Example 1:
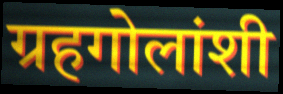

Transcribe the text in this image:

ग्रहगोलांशी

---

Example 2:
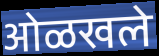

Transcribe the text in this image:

ओळखले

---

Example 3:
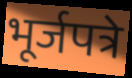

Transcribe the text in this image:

भूर्जपत्रे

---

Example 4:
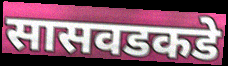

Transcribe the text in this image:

सासवडकडे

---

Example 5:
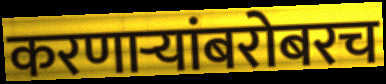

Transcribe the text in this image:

करणाऱ्यांबरोबरच